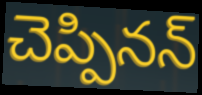
చెప్పినన్